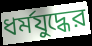
ধর্মযুদ্ধের